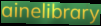
ainelibrary